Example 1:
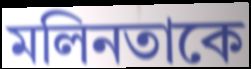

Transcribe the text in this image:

মলিনতাকে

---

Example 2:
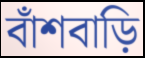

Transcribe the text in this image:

বাঁশবাড়ি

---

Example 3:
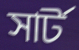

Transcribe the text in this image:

সার্ট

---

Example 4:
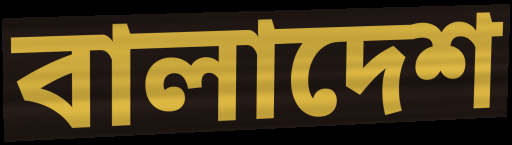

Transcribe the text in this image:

বালাদেশ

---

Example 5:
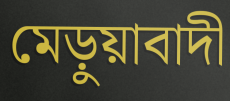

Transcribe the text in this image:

মেড়ুয়াবাদী